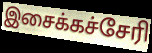
இசைக்கச்சேரி